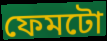
ফেমটো